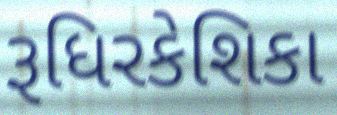
રૂધિરકેશિકા